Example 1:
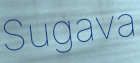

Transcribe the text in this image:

Sugava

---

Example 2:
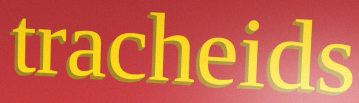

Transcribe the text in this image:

tracheids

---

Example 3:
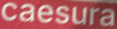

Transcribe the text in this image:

caesura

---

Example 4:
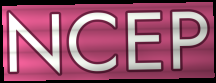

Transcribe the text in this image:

NCEP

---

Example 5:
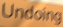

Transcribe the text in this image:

Undoing